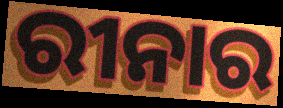
ରୀନାର